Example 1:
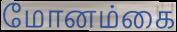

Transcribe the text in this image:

மோனம்கை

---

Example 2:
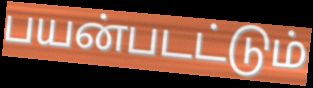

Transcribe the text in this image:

பயன்படட்டும்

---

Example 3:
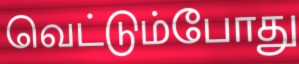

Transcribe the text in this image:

வெட்டும்போது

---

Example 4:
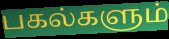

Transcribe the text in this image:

பகல்களும்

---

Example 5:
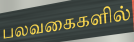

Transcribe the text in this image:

பலவகைகளில்